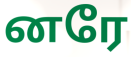
னரே